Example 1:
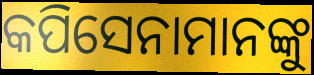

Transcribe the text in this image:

କପିସେନାମାନଙ୍କୁ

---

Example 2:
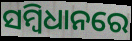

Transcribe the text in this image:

ସମ୍ବିଧାନରେ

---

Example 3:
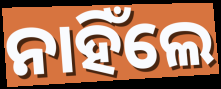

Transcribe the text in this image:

ନାହିଁଲେ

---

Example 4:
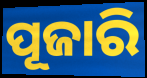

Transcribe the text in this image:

ପୂଜାରି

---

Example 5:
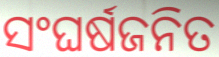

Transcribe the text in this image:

ସଂଘର୍ଷଜନିତ